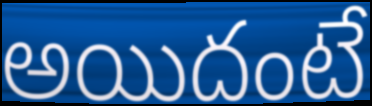
అయిదంటే